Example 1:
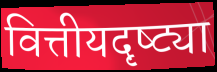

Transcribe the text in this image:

वित्तीयदृष्ट्या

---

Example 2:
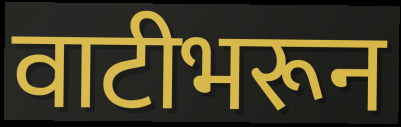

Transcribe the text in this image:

वाटीभरून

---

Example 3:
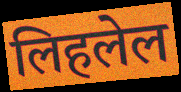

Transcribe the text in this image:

लिहलेल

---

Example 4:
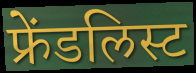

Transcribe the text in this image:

फ्रेंडलिस्ट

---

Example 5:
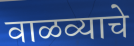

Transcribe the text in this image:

वाळव्याचे